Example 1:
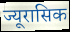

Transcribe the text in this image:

ज्यूरासिक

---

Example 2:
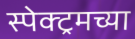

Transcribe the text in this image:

स्पेक्ट्रमच्या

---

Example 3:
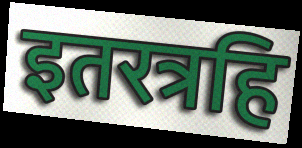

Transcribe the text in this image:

इतरत्रहि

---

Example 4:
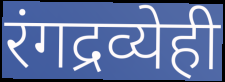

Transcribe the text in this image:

रंगद्रव्येही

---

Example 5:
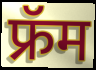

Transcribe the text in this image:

फ्रॅम